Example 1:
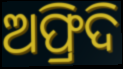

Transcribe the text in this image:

ଅଫ୍ରିଦି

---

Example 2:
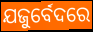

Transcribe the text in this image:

ଯଜୁର୍ବେଦରେ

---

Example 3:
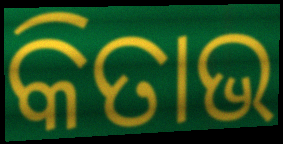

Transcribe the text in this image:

କିତାଭ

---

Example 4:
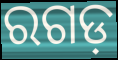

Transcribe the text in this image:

ରଗଡ଼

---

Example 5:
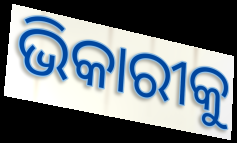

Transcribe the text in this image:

ଭିକାରୀକୁ